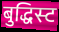
बुद्धिस्ट